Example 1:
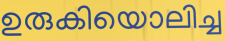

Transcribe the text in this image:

ഉരുകിയൊലിച്ച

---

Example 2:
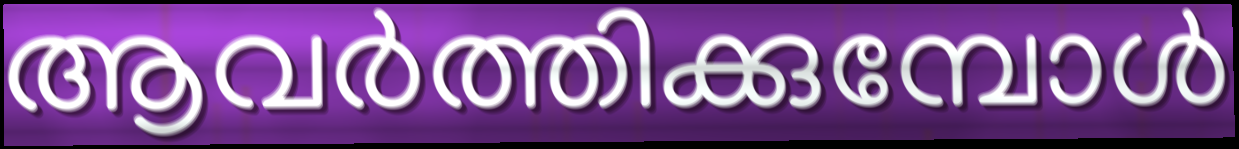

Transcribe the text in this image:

ആവർത്തിക്കുമ്പോൾ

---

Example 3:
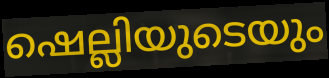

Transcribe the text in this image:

ഷെല്ലിയുടെയും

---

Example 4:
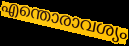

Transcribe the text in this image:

എന്തൊരാവശ്യം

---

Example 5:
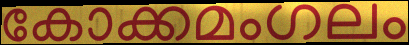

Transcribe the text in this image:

കോക്കമംഗലം